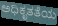
ಅಧಿಕೃತತೆಯ